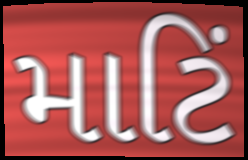
માટિં